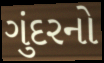
ગુંદરનો